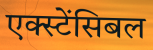
एक्स्टेंसिबल